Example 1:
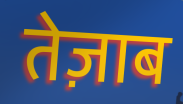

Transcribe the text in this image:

तेज़ाब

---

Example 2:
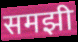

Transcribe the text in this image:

समझी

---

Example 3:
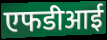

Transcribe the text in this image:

एफडीआई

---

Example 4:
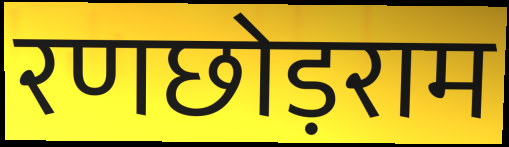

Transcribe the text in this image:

रणछोड़राम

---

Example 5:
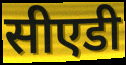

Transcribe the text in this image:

सीएडी